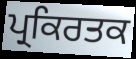
ਪ੍ਰਕਿਰਤਕ